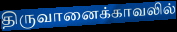
திருவானைக்காவலில்